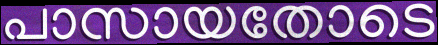
പാസായതോടെ